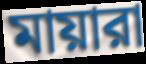
মায়ারা